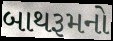
બાથરૂમનો